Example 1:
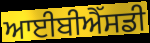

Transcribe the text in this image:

ਆਈਬੀਐੱਸਡੀ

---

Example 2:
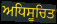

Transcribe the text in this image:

ਅਧਿਸੂਚਿਤ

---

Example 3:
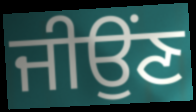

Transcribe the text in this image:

ਜੀਉਂਣ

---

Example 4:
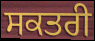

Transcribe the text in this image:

ਸਕਤਰੀ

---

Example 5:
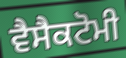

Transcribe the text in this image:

ਵੈਸੈਕਟੋਮੀ